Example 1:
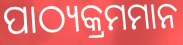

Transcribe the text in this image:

ପାଠ୍ୟକ୍ରମମାନ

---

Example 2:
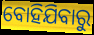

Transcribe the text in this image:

ବୋହିଯିବାରୁ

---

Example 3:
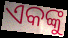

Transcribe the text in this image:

ଏକଙ୍କୁ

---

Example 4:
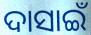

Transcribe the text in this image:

ଦାସାଇଁ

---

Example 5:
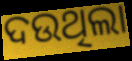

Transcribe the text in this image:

ଦଉଥିଲା